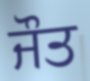
ਜੌਤ